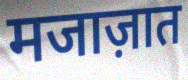
मजाज़ात